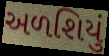
અળશિયું